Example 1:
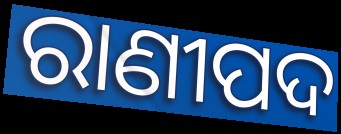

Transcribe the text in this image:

ରାଣୀପଦ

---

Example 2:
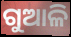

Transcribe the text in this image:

ଗୁଆଳି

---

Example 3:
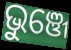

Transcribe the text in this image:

ଭୁଞ୍ଜେ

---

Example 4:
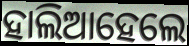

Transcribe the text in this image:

ହାଲିଆହେଲେ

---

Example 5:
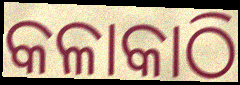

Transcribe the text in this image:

କଳାକାଠି